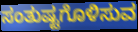
ಸಂತುಷ್ಟಗೊಳಿಸುವ